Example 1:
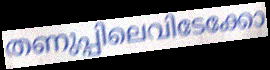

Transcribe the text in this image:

തണുപ്പിലെവിടേക്കോ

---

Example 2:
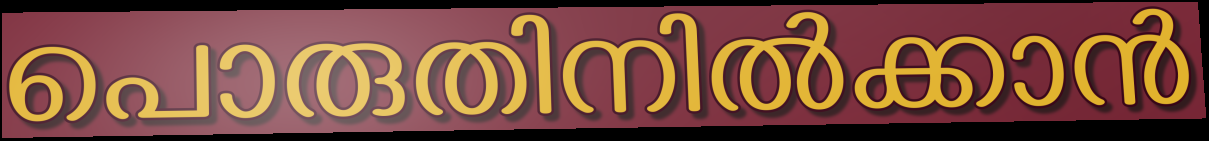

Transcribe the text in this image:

പൊരുതിനിൽക്കാൻ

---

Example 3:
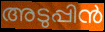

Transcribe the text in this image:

അടുപ്പിൻ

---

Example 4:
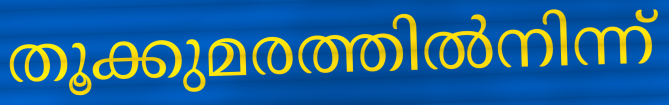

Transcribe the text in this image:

തൂക്കുമരത്തിൽനിന്ന്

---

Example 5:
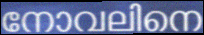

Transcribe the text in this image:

നോവലിനെ